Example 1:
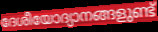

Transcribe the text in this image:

ദേശീയോദ്യാനങ്ങളുണ്ട്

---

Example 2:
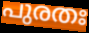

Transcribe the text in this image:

പുരതഃ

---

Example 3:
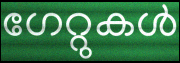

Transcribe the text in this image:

ഗേറ്റുകൾ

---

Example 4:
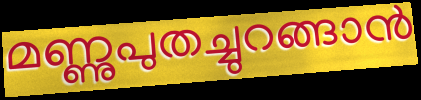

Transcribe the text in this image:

മണ്ണുപുതച്ചുറങ്ങാൻ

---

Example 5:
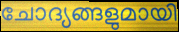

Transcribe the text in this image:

ചോദ്യങ്ങളുമായി